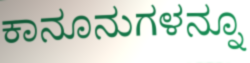
ಕಾನೂನುಗಳನ್ನೂ